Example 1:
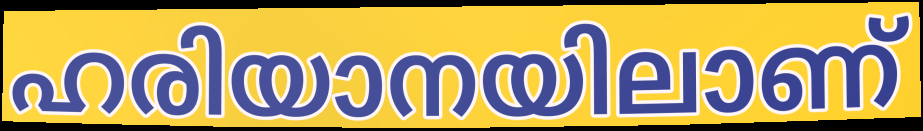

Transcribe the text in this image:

ഹരിയാനയിലാണ്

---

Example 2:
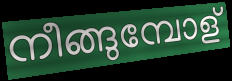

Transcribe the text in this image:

നീങ്ങുമ്പോള്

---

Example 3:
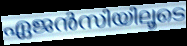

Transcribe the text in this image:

ഏജൻസിയിലൂടെ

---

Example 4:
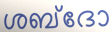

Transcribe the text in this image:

ശബ്ദോ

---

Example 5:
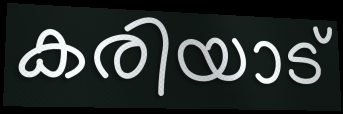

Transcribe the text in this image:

കരിയാട്